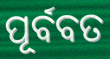
ପୂର୍ବବତ